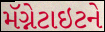
મૅગ્નેટાઇટને